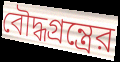
বৌদ্ধগ্রন্ত্রের